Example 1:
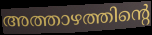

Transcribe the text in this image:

അത്താഴത്തിന്റെ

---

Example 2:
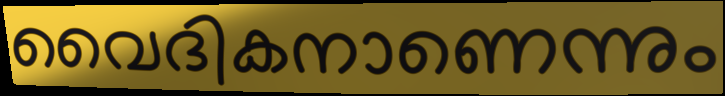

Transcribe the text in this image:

വൈദികനാണെന്നും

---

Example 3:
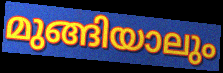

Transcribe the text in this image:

മുങ്ങിയാലും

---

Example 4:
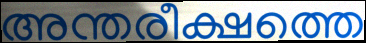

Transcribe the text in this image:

അന്തരീക്ഷത്തെ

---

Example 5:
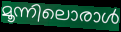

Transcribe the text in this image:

മൂന്നിലൊരാൾ